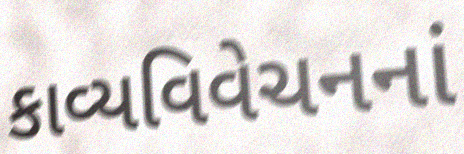
કાવ્યવિવેચનનાં